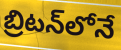
బ్రిటన్‌లోనే